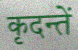
कृदन्तें